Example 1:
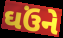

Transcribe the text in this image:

ઘઉંને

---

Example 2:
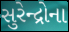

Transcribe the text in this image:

સુરેન્દ્રોના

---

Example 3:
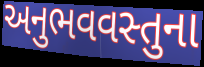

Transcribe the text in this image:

અનુભવવસ્તુના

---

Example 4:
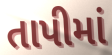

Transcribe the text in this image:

તાપીમાં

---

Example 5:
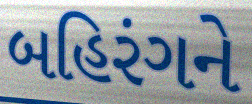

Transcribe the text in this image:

બહિરંગને